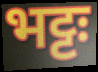
भट्टः